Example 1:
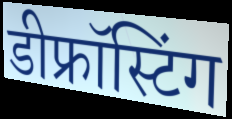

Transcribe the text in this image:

डीफ्रॉस्टिंग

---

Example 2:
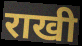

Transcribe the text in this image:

राखी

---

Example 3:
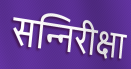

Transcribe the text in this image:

सन्निरीक्षा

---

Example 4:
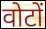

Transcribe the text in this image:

वोटों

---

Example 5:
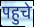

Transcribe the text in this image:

पहुचे